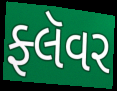
ફ્લૅવર